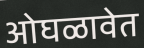
ओघळावेत